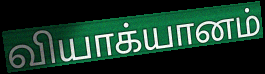
வியாக்யானம்